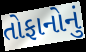
તોફાનોનું